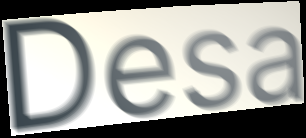
Desa